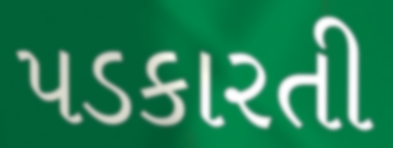
પડકારતી